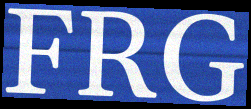
FRG